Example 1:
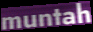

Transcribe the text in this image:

muntah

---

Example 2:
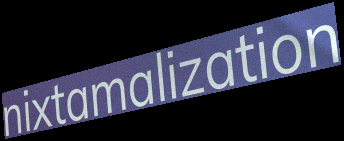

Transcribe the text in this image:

nixtamalization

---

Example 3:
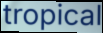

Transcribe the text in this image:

tropical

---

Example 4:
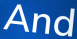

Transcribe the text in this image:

And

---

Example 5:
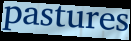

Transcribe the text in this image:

pastures